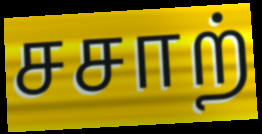
சசாற்